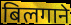
बिलगाने